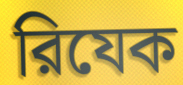
রিযেক